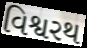
વિશ્વરથ